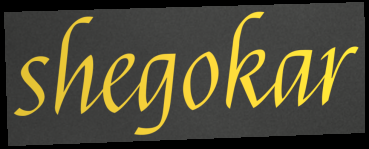
shegokar